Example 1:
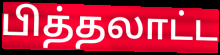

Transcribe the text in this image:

பித்தலாட்ட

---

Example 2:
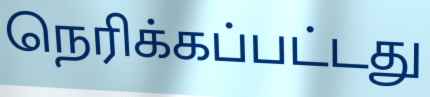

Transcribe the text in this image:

நெரிக்கப்பட்டது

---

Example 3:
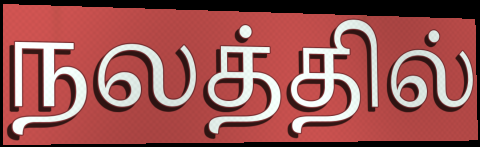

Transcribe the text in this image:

நலத்தில்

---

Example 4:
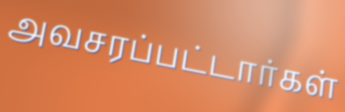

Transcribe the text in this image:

அவசரப்பட்டார்கள்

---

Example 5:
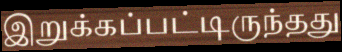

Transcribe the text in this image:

இறுக்கப்பட்டிருந்தது